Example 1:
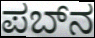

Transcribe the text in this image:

ಪಬ್‌ನ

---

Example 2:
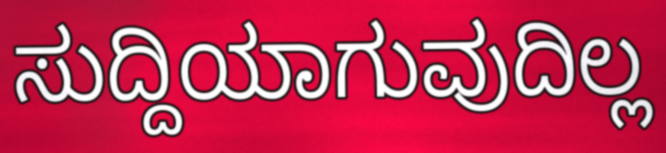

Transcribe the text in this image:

ಸುದ್ದಿಯಾಗುವುದಿಲ್ಲ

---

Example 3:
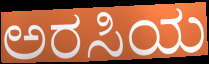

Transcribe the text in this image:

ಅರಸಿಯ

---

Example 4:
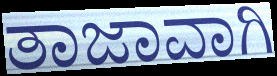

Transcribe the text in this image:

ತಾಜಾವಾಗಿ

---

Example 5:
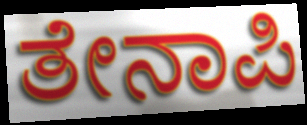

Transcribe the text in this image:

ತೇನಾಪಿ